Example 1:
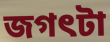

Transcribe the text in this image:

জগৎটা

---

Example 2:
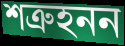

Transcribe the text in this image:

শত্রুহনন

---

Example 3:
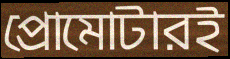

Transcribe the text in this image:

প্রোমোটারই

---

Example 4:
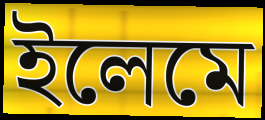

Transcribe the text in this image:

ইলেমে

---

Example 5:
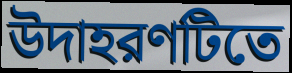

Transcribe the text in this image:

উদাহরণটিতে